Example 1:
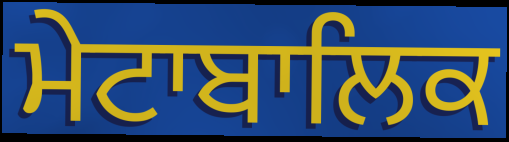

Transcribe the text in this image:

ਮੇਟਾਬਾਲਿਕ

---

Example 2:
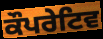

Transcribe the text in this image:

ਕੌਪਰੇਟਿਵ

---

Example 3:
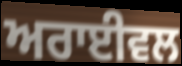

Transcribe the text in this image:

ਅਰਾਈਵਲ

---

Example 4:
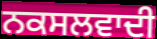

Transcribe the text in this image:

ਨਕਸਲਵਾਦੀ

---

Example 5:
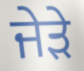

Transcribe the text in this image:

ਜੇੜੇ